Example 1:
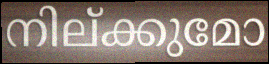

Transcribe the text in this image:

നില്ക്കുമോ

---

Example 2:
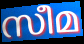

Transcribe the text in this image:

സീമ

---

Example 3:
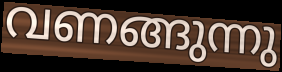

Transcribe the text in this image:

വണങ്ങുന്നു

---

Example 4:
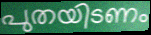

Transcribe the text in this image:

പുതയിടണം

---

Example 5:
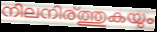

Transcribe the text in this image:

നിലനിര്ത്തുകയും